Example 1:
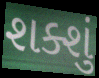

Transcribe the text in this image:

શક્શું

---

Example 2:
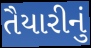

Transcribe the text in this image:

તૈયારીનું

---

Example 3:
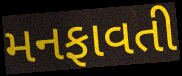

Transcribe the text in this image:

મનફાવતી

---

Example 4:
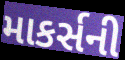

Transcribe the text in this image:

માકર્સની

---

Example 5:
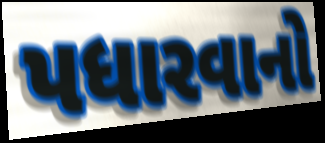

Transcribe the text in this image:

પધારવાનો